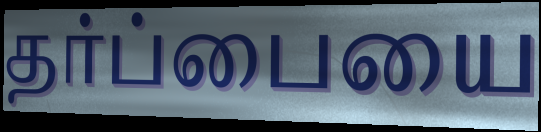
தர்ப்பையை